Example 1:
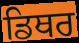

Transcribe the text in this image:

ਡਿਥਰ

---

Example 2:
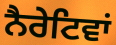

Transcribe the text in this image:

ਨੈਰੇਟਿਵਾਂ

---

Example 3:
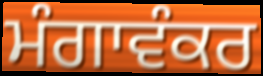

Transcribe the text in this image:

ਮੰਗਾਵੰਕਰ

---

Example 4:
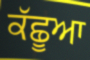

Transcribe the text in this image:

ਕੱਛੂਆ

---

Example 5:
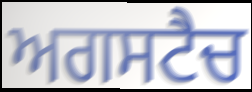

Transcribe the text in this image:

ਅਗਸਟੈਚ